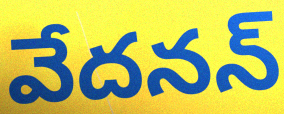
వేదనన్